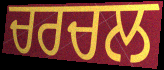
ਚਰਚਲ